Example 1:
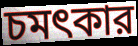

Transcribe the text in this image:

চমৎকার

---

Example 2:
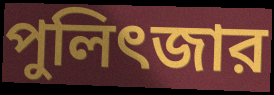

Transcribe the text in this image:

পুলিৎজার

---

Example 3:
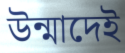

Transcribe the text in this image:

উন্মাদেই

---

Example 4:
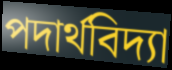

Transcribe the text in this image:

পদার্থবিদ্যা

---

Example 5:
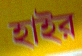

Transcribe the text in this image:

হাইর